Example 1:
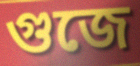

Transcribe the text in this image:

গুজে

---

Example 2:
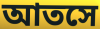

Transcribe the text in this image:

আতসে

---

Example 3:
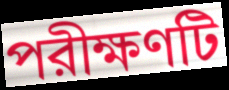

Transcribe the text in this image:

পরীক্ষণটি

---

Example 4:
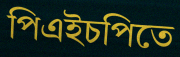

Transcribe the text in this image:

পিএইচপিতে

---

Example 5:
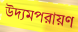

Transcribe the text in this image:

উদ্যমপরায়ণ